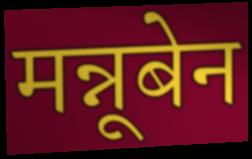
मन्नूबेन